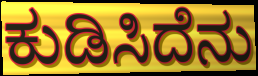
ಕುಡಿಸಿದೆನು